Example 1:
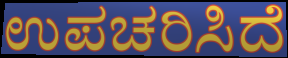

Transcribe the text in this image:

ಉಪಚರಿಸಿದೆ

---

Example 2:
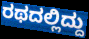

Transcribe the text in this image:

ರಥದಲ್ಲಿದ್ದು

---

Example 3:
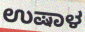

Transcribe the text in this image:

ಉಷಾಳ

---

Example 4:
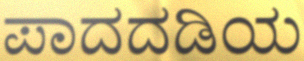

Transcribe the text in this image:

ಪಾದದಡಿಯ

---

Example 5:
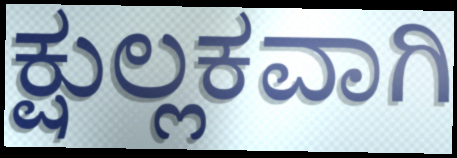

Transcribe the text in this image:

ಕ್ಷುಲ್ಲಕವಾಗಿ